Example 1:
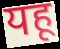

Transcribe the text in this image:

यहू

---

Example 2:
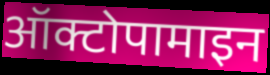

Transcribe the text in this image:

ऑक्टोपामाइन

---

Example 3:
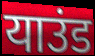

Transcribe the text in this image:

याउंड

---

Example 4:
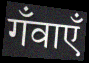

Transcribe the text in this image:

गँवाएँ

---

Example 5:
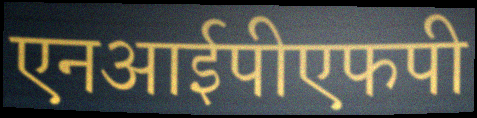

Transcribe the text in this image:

एनआईपीएफपी